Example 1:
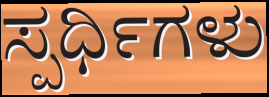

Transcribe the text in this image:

ಸ್ಪರ್ಧಿಗಳು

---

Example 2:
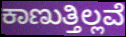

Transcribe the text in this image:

ಕಾಣುತ್ತಿಲ್ಲವೆ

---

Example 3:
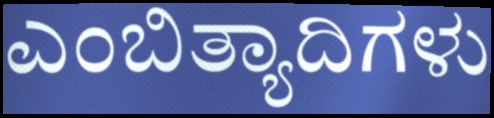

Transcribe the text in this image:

ಎಂಬಿತ್ಯಾದಿಗಳು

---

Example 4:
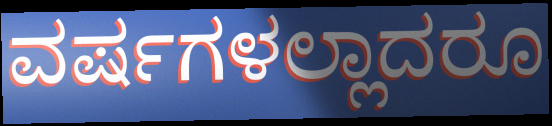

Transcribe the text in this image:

ವರ್ಷಗಳಲ್ಲಾದರೂ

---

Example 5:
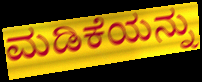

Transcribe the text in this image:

ಮಡಿಕೆಯನ್ನು